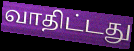
வாதிட்டது